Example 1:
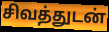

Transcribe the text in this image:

சிவத்துடன்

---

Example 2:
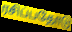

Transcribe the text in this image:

ரசிப்பதோடு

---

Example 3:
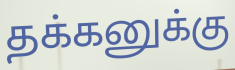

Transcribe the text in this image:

தக்கனுக்கு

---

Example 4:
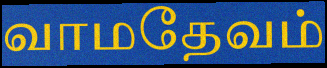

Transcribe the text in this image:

வாமதேவம்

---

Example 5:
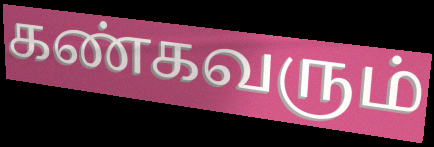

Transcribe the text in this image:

கண்கவரும்